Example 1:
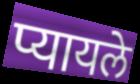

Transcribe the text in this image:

प्यायले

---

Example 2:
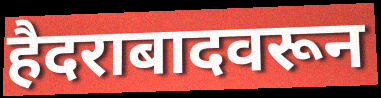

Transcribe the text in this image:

हैदराबादवरून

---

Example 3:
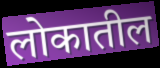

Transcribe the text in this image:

लोकातील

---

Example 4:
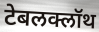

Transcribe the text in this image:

टेबलक्लॉथ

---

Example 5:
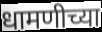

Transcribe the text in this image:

धामणीच्या